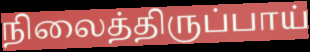
நிலைத்திருப்பாய்